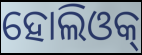
ହୋଲିଓକ୍